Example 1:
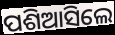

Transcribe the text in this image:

ପଶିଆସିଲେ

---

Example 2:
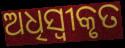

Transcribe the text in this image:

ଅଧିସ୍ୱୀକୃତ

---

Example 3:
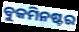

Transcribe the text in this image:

ବୁକମିନଷ୍ଟର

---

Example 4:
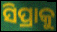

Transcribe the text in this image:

ସିପ୍ରାକୁ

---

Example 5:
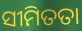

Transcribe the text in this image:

ସୀମିତତା